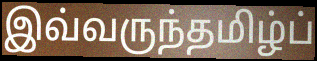
இவ்வருந்தமிழ்ப்